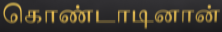
கொண்டாடினான்